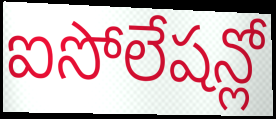
ఐసోలేషన్లో